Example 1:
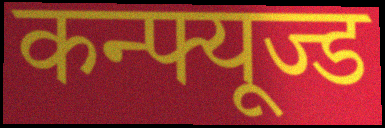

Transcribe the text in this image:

कन्फ्यूज्ड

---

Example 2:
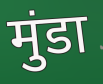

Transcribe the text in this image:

मुंडा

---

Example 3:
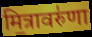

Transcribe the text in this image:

मि॒त्रावरु॑णा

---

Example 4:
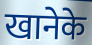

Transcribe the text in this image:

खानेके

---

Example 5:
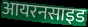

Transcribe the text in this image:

आयरनसाइड